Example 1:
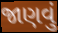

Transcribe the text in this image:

જાણવું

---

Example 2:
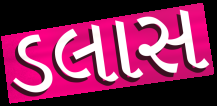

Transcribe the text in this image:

ડલાસ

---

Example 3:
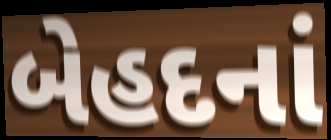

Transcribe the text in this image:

બેહદનાં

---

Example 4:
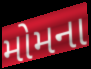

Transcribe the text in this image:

મોમના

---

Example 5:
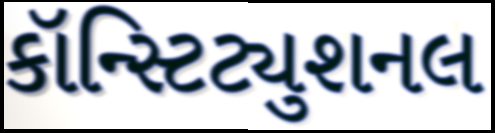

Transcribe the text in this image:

કૉન્સ્ટિટ્યુશનલ